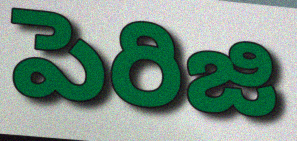
పెరిజి